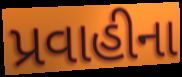
પ્રવાહીના